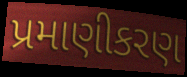
પ્રમાણીકરણ